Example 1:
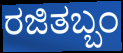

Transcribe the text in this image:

ರಜಿತಬ್ಬಂ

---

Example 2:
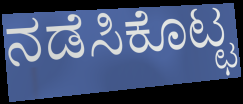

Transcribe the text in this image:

ನಡೆಸಿಕೊಟ್ಟ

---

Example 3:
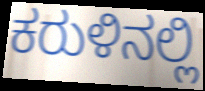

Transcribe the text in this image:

ಕರುಳಿನಲ್ಲಿ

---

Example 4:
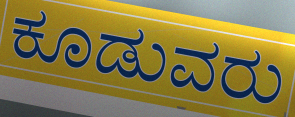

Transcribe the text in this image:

ಕೂಡುವರು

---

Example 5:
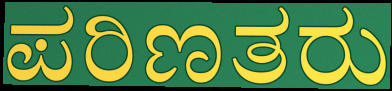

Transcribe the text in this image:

ಪರಿಣತರು